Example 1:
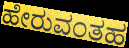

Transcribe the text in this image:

ಹೇರುವಂತಹ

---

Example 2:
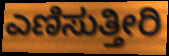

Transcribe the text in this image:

ಎಣಿಸುತ್ತೀರಿ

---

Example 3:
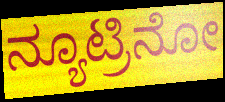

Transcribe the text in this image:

ನ್ಯೂಟ್ರಿನೋ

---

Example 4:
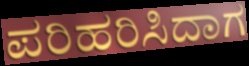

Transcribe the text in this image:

ಪರಿಹರಿಸಿದಾಗ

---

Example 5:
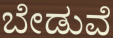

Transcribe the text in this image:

ಬೇಡುವೆ